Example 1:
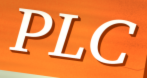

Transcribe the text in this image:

PLC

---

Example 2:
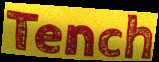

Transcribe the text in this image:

Tench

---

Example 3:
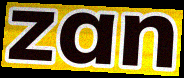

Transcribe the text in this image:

zan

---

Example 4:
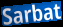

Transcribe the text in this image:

Sarbat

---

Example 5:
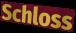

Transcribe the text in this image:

Schloss